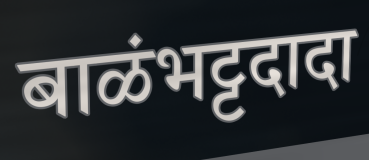
बाळंभट्टदादा